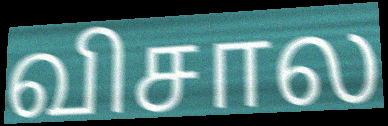
விசால